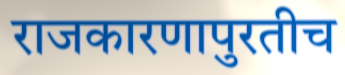
राजकारणापुरतीच